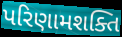
પરિણામશક્તિ